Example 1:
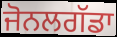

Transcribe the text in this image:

ਜੋਨਲਗੱਡਾ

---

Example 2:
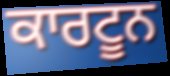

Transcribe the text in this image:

ਕਾਰਟੂਨ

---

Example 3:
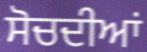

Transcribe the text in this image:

ਸੋਚਦੀਆਂ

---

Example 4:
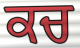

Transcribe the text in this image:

ਕਚ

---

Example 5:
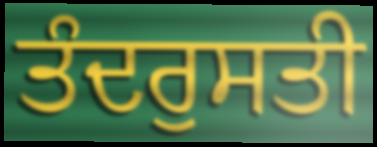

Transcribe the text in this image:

ਤੰਦਰੁਸਤੀ